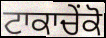
ਟਾਕਾਚੇਂਕੋ